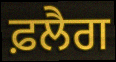
ਫ਼ਲੈਗ